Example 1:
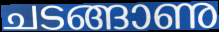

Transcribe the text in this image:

ചടങ്ങാണു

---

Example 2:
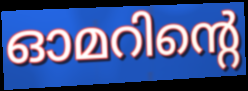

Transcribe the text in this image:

ഓമറിന്റെ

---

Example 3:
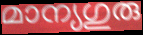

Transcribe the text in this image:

മാന്യഗുരു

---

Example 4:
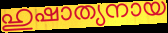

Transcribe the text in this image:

ഹുഷാത്യനായ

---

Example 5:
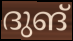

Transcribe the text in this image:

ദുങ്